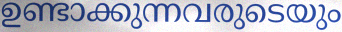
ഉണ്ടാക്കുന്നവരുടെയും